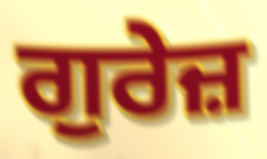
ਗੁਰੇਜ਼